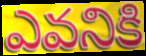
ఎవనికి